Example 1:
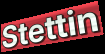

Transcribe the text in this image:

Stettin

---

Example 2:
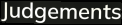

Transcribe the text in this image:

Judgements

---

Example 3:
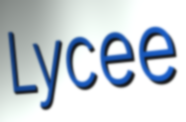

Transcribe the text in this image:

Lycee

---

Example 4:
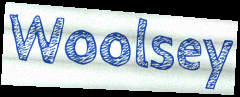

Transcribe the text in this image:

Woolsey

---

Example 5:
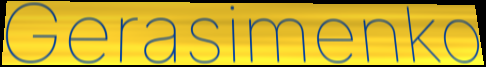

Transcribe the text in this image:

Gerasimenko